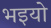
भइयो